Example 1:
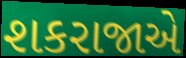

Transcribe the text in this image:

શકરાજાએ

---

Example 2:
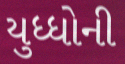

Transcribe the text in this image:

યુધ્ધોની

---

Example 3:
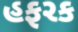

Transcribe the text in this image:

હફરક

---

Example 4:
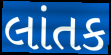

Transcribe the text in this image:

લાંતક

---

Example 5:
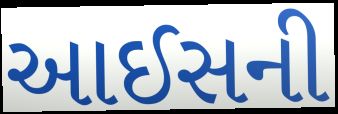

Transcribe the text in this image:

આઈસની